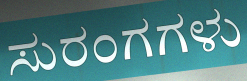
ಸುರಂಗಗಳು